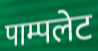
पाम्पलेट